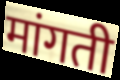
मांगती